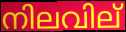
നിലവില്